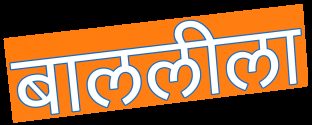
बाललीला